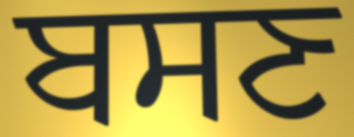
ਬਸਣ